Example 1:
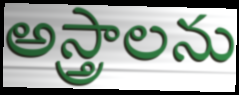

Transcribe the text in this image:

అస్త్రాలను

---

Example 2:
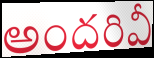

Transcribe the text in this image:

అందరివీ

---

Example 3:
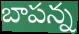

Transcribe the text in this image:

బాపన్న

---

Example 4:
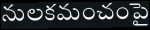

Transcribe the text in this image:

నులకమంచంపై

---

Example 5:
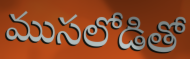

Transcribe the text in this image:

ముసలోడితో